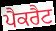
ਪੈਕਰੈਟ